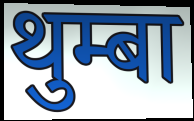
थुम्बा